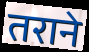
तराने